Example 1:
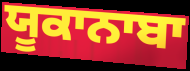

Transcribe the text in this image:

ਯੂਕਾਨਾਬਾ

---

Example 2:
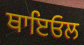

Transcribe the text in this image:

ਥਾਇਓਲ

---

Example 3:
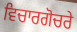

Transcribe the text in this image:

ਵਿਚਾਰਗੋਚਰੇ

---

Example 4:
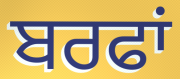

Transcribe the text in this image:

ਬਰਫਾਂ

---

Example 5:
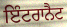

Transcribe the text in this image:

ਇੰਟਰਾਨੈਟ